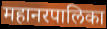
महानरपालिका